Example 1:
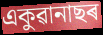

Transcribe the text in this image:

একুৱানাছৰ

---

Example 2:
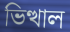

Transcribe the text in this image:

ভিত্থাল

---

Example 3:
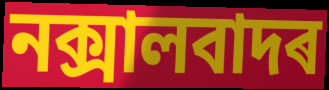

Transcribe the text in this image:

নক্সালবাদৰ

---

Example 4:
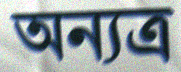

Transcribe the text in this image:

অন্যত্ৰ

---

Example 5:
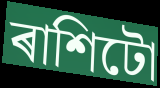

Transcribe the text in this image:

ৰাশিটো